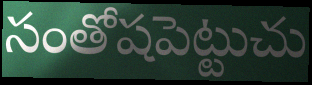
సంతోషపెట్టుచు